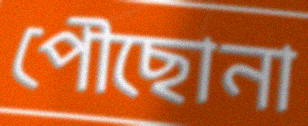
পৌছোনা